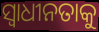
ସ୍ୱାଧୀନତାକୁ